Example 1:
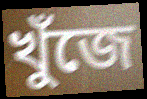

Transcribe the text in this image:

খুঁজে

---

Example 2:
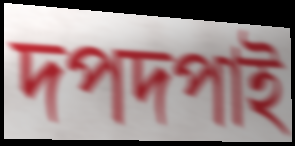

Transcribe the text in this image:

দপদপাই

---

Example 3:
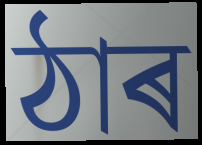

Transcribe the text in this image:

ঠাৰ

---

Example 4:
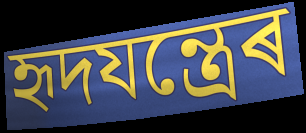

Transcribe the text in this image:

হৃদযন্ত্ৰেৰ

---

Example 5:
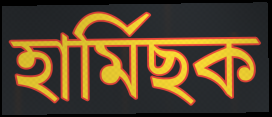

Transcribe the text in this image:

হাৰ্মিছক